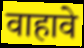
वाहावे